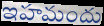
ఇహమందు